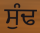
ਸੁੰਢ